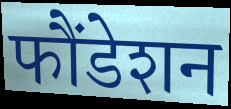
फौंडेशन